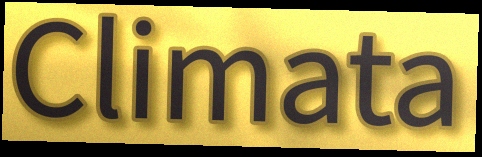
Climata